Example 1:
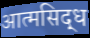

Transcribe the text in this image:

आत्मसिद्ध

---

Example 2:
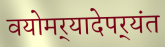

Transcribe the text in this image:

वयोमर्यादेपर्यंत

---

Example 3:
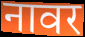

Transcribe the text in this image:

नावर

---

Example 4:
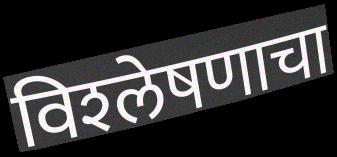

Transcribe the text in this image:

विश्‍लेषणाचा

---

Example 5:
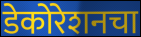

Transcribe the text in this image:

डेकोरेशनचा